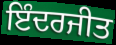
ਇੰਦਰਜੀਤ